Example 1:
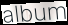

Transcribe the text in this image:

album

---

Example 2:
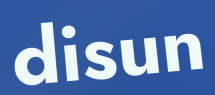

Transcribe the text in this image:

disun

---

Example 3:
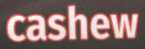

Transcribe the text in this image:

cashew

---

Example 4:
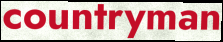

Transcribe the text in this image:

countryman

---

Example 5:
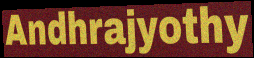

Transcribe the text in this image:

Andhrajyothy